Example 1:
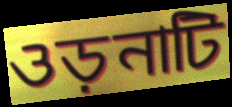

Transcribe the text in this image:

ওড়নাটি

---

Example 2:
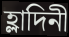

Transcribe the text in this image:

হ্লাদিনী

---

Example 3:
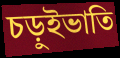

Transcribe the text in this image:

চড়ুইভাতি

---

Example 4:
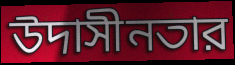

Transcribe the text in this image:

উদাসীনতার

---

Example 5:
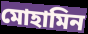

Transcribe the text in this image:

মোহামিন